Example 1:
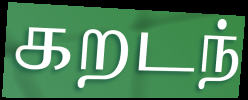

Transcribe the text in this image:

கறடந்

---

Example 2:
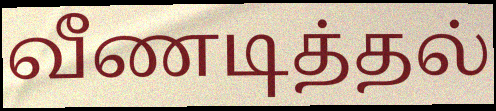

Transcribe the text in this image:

வீணடித்தல்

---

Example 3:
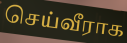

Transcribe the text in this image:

செய்வீராக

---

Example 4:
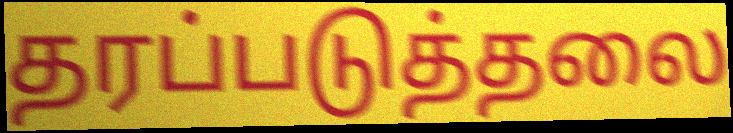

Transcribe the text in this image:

தரப்படுத்தலை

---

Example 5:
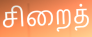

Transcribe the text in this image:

சிறைத்